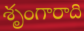
శృంగారాది